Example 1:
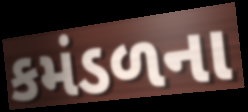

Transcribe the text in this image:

કમંડળના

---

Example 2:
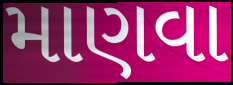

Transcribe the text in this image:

માણવા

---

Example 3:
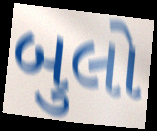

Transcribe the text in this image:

બુલો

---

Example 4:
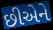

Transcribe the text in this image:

છીએને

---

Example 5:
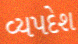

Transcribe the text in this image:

વ્યપદેશ